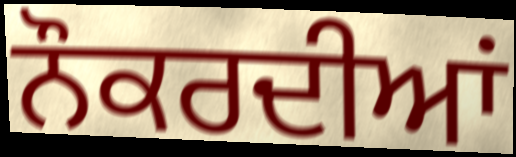
ਨੌਕਰਦੀਆਂ